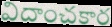
విదాంచకార